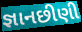
જ્ઞાનછીણી